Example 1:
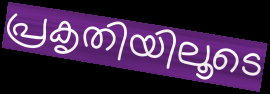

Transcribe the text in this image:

പ്രകൃതിയിലൂടെ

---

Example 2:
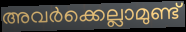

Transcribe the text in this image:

അവർക്കെല്ലാമുണ്ട്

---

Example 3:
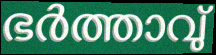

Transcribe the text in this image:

ഭർത്താവു്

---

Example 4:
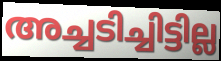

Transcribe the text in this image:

അച്ചടിച്ചിട്ടില്ല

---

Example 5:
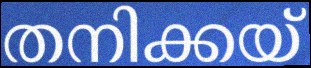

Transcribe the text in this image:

തനിക്കയ്